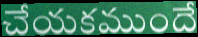
చేయకముందే